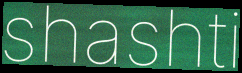
shashti